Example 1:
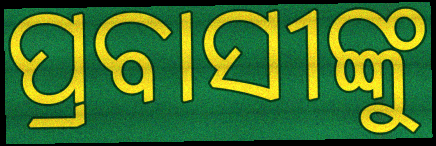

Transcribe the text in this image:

ପ୍ରବାସୀଙ୍କୁ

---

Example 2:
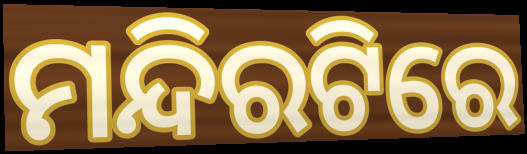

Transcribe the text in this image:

ମନ୍ଦିରଟିରେ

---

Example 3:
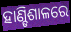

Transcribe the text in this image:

ହାଣ୍ଡିଶାଳରେ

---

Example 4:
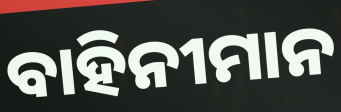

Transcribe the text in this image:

ବାହିନୀମାନ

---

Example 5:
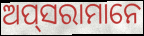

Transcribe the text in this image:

ଅପ୍‌ସରାମାନେ